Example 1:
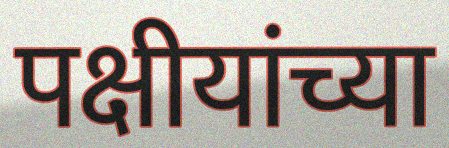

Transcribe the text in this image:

पक्षीयांच्या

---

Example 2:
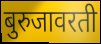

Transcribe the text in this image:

बुरुजावरती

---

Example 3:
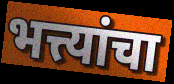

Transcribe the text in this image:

भत्त्यांचा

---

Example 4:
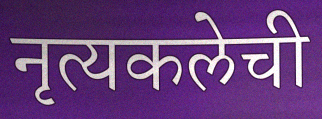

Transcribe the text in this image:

नृत्यकलेची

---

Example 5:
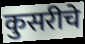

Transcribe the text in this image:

कुसरीचे